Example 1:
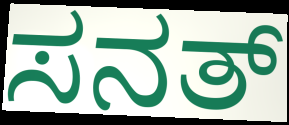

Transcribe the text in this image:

ಸನತ್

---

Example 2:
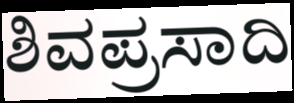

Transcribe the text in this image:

ಶಿವಪ್ರಸಾದಿ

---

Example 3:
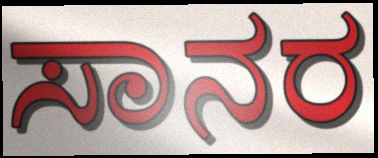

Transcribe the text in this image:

ಸಾನರ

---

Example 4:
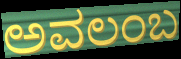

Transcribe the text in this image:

ಅವಲಂಬ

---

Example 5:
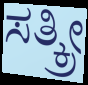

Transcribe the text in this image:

ಸತ್ಕ್ರೀ